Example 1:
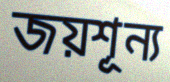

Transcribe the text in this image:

জয়শূন্য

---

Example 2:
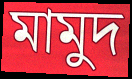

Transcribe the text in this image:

মামুদ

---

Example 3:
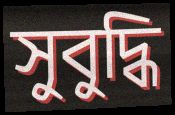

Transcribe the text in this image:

সুবুদ্ধি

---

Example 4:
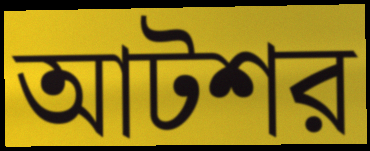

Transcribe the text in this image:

আটশর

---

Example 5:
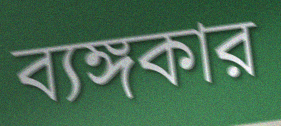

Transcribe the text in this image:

ব্যঙ্গকার